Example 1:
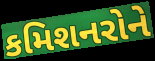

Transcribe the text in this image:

કમિશનરોને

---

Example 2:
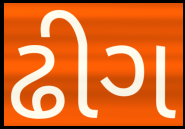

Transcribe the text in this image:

ઢીગ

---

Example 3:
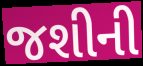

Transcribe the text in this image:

જશીની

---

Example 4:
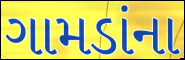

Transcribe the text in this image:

ગામડાંના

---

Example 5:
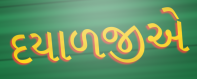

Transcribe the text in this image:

દયાળજીએ